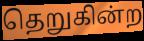
தெறுகின்ற